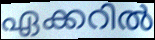
ഏക്കറിൽ